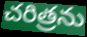
చరిత్రను